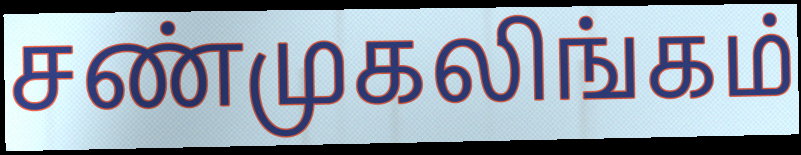
சண்முகலிங்கம்